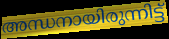
അന്ധനായിരുന്നിട്ട്